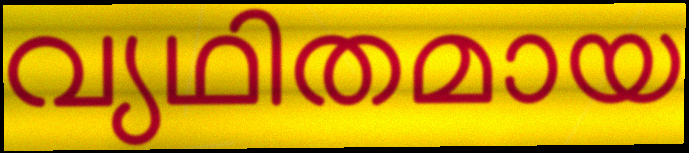
വ്യഥിതമായ